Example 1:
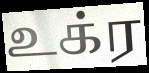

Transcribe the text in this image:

உக்ர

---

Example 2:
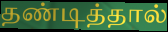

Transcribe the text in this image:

தண்டித்தால்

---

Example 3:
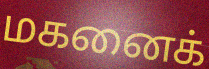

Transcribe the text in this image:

மகனைக்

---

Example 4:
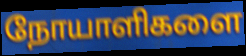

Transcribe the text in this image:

நோயாளிகளை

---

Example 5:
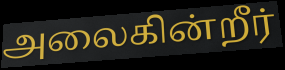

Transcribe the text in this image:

அலைகின்றீர்